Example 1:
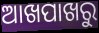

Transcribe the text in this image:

ଆଖପାଖରୁ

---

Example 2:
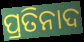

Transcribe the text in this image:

ପ୍ରତିନାଦ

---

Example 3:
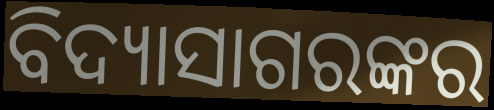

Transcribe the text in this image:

ବିଦ୍ୟାସାଗରଙ୍କର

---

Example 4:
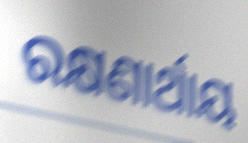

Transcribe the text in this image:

ରକ୍ଷଣାର୍ଥାୟ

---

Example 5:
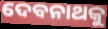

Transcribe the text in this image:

ଦେବନାଥକୁ